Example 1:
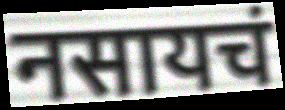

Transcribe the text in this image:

नसायचं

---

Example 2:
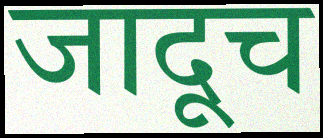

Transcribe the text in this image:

जादूच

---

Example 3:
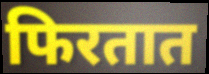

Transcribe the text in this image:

फिरतात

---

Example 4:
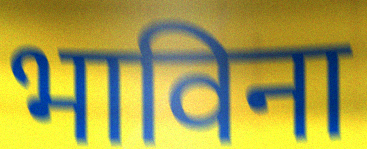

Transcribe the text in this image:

भाविना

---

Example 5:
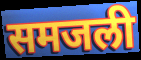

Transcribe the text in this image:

समजली